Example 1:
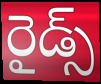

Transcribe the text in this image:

రైడ్స్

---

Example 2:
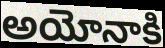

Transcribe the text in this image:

అయోనాకి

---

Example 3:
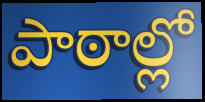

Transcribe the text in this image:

పాఠాల్లో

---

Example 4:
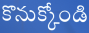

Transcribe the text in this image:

కొనుక్కోండి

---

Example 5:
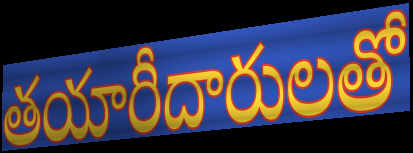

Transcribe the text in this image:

తయారీదారులతో